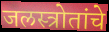
जलस्त्रोतांचे